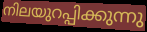
നിലയുറപ്പിക്കുന്നു